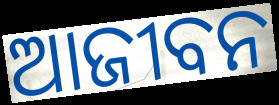
ଆଜୀବନ